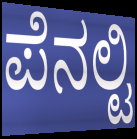
ಪೆನಲ್ಟಿ